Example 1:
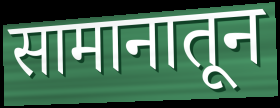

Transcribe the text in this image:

सामानातून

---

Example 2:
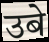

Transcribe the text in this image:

उबे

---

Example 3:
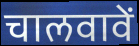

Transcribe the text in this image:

चालवावें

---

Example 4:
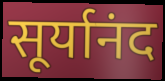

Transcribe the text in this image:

सूर्यानंद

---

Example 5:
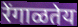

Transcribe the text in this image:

रेंगाळतेय